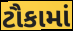
ટૌકામાં